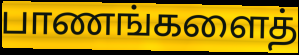
பாணங்களைத்